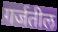
गर्जतील